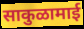
साकुळामाई